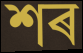
শৰ